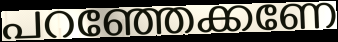
പറഞ്ഞേക്കണേ